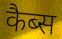
कैब्स